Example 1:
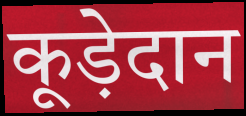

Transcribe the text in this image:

कूड़ेदान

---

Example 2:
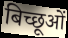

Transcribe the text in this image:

बिच्छूओं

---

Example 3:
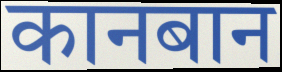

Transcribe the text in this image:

कानबान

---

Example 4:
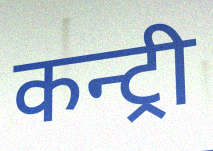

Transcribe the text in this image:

कन्ट्री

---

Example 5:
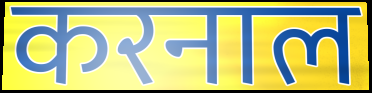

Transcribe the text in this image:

करनाल